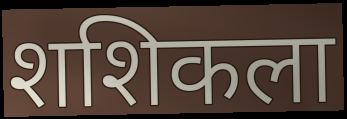
शशिकला